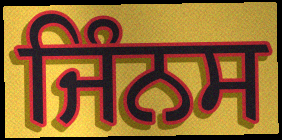
ਜਿੰਨਸ